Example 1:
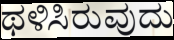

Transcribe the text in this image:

ಥಳಿಸಿರುವುದು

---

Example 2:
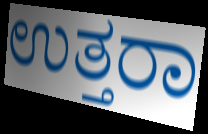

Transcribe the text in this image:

ಉತ್ತರಾ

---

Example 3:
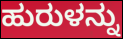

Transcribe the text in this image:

ಹುರುಳನ್ನು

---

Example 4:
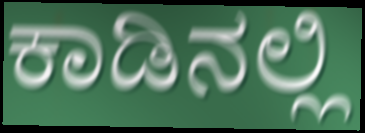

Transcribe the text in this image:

ಕಾಡಿನಲ್ಲಿ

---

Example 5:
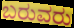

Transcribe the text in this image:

ಬರುವರು